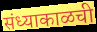
संध्याकाळची